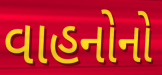
વાહનોનો